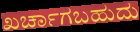
ಖರ್ಚಾಗಬಹುದು